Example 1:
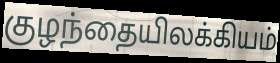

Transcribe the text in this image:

குழந்தையிலக்கியம்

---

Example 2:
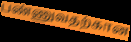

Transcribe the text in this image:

பண்ணுவதற்கான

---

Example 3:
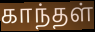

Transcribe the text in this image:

காந்தள்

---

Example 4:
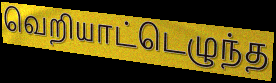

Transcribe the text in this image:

வெறியாட்டெழுந்த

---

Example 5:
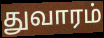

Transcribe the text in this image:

துவாரம்